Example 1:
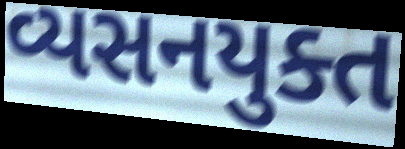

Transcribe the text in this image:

વ્યસનયુક્ત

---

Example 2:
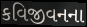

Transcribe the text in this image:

કવિજીવનના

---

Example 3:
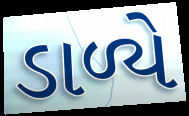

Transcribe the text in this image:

ડાળ્યે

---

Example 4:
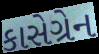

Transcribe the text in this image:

કાસેગ્રેન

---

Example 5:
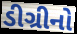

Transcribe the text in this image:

ડીગ્રીનો